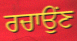
ਰਚਾਉਂਣ